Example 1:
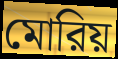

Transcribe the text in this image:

মোরিয়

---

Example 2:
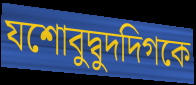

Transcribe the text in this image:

যশোবুদ্বুদদিগকে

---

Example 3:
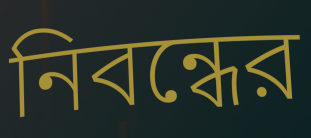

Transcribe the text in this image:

নিবন্ধের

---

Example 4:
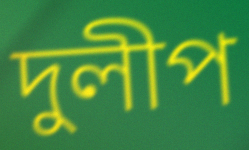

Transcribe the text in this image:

দুলীপ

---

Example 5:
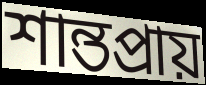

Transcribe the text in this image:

শান্তপ্রায়